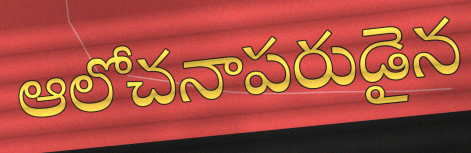
ఆలోచనాపరుడైన